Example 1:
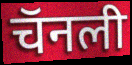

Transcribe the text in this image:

चॅनली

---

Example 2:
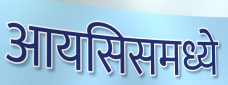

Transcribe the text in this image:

आयसिसमध्ये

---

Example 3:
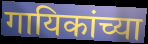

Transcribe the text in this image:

गायिकांच्या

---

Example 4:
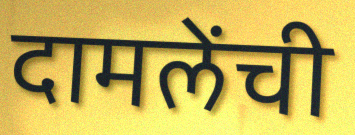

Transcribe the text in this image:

दामलेंची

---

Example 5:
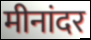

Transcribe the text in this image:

मीनांदर